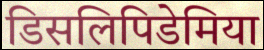
डिसलिपिडेमिया